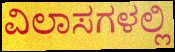
ವಿಲಾಸಗಳಲ್ಲಿ